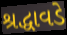
શ્રદ્ધાવડે